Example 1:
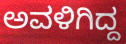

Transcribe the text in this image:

ಅವಳಿಗಿದ್ದ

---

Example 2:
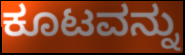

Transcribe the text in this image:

ಕೂಟವನ್ನು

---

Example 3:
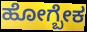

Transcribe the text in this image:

ಹೋಗ್ಬೇಕ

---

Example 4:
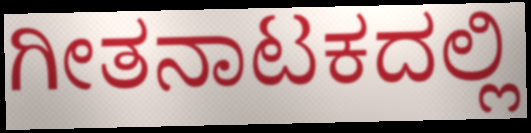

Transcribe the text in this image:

ಗೀತನಾಟಕದಲ್ಲಿ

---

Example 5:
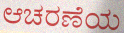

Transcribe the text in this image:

ಆಚರಣೆಯ